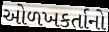
ઓળખકર્તાનો